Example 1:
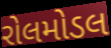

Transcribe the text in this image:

રોલમોડલ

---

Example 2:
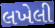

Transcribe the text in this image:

લખેલી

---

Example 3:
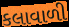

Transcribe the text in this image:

કલાવાળી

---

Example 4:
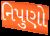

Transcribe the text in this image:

નિપુણો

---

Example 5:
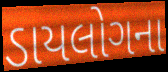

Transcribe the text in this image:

ડાયલોગના